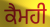
ਕੈਮਹੀ